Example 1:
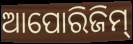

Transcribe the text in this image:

ଆପୋରିଜିମ୍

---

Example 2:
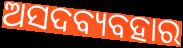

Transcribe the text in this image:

ଅସଦବ୍ୟବହାର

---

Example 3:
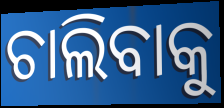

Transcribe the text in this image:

ଚାଲିବାକୁ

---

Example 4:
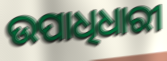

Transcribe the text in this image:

ଉପାଧିଧାରୀ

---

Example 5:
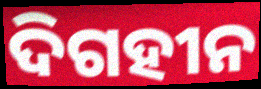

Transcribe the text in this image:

ଦିଗହୀନ